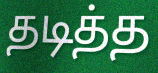
தடித்த